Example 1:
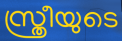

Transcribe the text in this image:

സ്ത്രീയുടെ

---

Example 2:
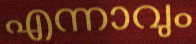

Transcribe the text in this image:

എന്നാവും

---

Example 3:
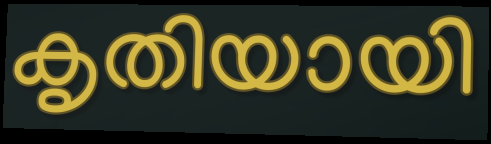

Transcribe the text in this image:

കൃതിയായി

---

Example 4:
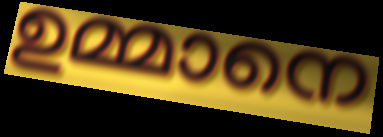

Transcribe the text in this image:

ഉമ്മാനെ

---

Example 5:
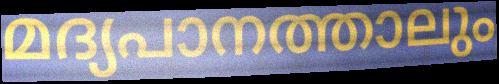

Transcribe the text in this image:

മദ്യപാനത്താലും